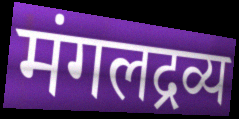
मंगलद्रव्य